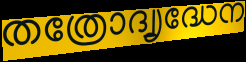
തത്രോദ്വൃദ്ധേന